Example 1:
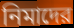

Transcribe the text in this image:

নিমাদের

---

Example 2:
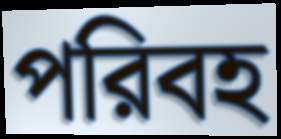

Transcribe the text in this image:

পরিবহ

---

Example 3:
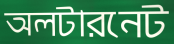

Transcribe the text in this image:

অলটারনেট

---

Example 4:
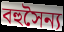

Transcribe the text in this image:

বহুসৈন্য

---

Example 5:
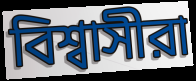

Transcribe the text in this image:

বিশ্বাসীরা